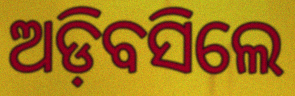
ଅଡ଼ିବସିଲେ